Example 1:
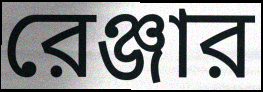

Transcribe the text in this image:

রেঞ্জার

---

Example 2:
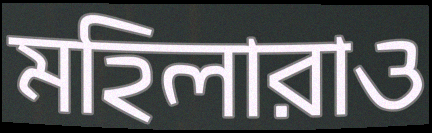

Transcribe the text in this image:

মহিলারাও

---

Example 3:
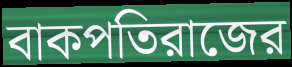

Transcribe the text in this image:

বাকপতিরাজের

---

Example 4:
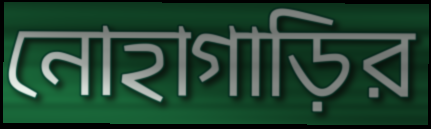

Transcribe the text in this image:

নোহাগাড়ির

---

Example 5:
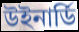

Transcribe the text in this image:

উইনার্ডি